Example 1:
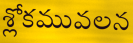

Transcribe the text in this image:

శ్లోకమువలన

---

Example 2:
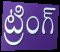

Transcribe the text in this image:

ట్రింగ్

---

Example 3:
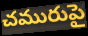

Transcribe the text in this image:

చమురుపై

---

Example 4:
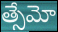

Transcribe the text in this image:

త్సేమో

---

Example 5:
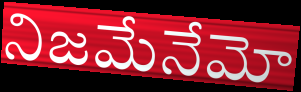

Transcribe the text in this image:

నిజమేనేమో